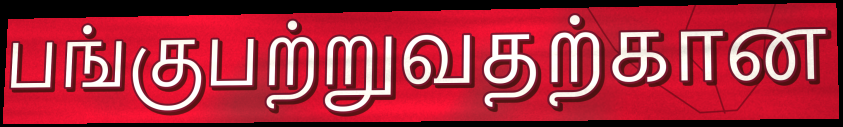
பங்குபற்றுவதற்கான